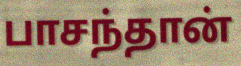
பாசந்தான்